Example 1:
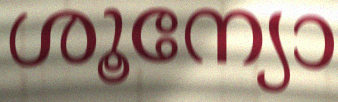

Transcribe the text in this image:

ശൂന്യോ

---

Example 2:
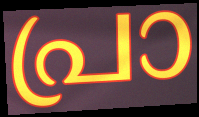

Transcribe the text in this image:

പ്രാ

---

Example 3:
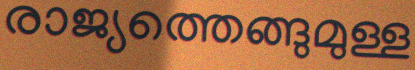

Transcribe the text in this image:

രാജ്യത്തെങ്ങുമുള്ള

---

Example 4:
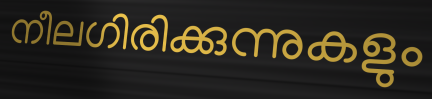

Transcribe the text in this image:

നീലഗിരിക്കുന്നുകളും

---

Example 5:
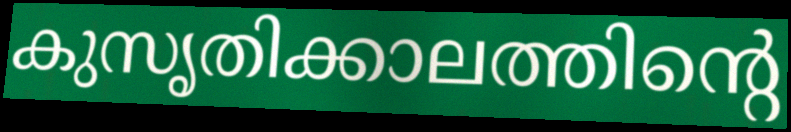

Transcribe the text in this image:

കുസൃതിക്കാലത്തിന്റെ